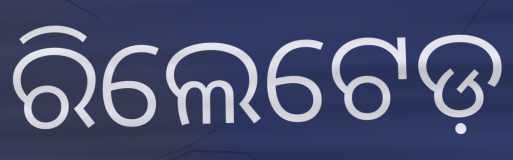
ରିଲେଟେଡ଼